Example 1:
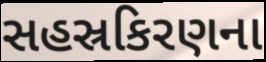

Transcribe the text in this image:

સહસ્રકિરણના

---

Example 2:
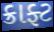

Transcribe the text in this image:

ક્રાફ્ટ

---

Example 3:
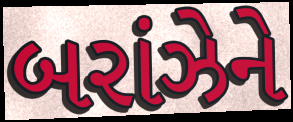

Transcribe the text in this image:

બરાંઝેને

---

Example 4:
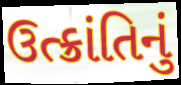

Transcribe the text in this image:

ઉત્ક્રાંતિનું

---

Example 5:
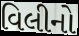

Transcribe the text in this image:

વિલીનો